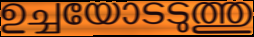
ഉച്ചയോടടുത്തു